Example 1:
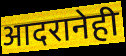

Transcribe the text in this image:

आदरानेही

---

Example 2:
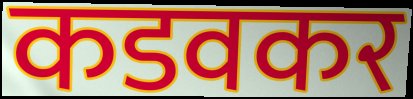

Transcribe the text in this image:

कडवकर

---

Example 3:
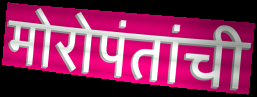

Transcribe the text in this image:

मोरोपंतांची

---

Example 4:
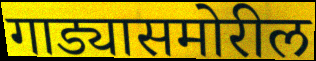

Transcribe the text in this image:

गाड्यासमोरील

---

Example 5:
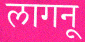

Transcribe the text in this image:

लागनू